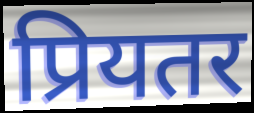
प्रियतर